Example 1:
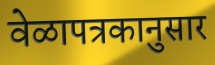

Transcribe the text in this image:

वेळापत्रकानुसार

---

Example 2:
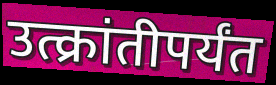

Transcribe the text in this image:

उत्क्रांतीपर्यंत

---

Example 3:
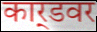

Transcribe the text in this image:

कार्डवर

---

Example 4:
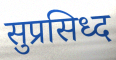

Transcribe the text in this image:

सुप्रसिध्द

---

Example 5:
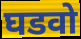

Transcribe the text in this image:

घडवो